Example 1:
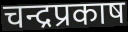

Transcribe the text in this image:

चन्द्रप्रकाष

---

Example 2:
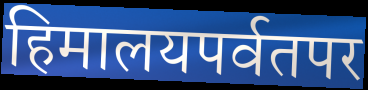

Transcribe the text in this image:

हिमालयपर्वतपर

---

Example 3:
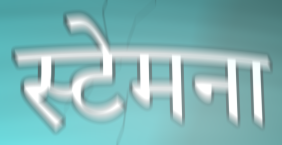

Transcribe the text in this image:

स्टेमना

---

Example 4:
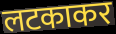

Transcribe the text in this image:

लटकाकर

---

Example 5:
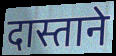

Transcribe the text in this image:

दास्ताने